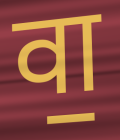
वा॒